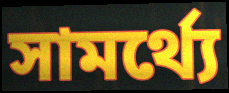
সামর্থ্যে